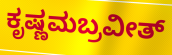
ಕೃಷ್ಣಮಬ್ರವೀತ್